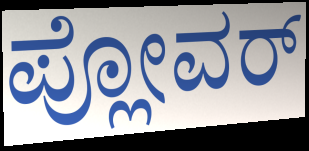
ಪ್ಲೋವರ್